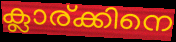
ക്ലാര്ക്കിനെ